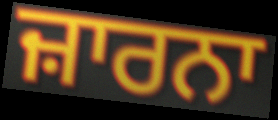
ਜ਼ਾਰਨਾ